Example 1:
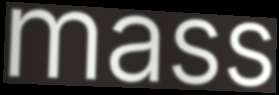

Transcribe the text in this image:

mass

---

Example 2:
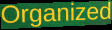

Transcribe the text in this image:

Organized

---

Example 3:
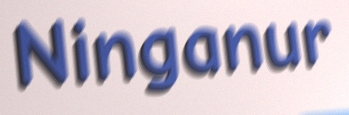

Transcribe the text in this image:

Ninganur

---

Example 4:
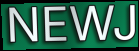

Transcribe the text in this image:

NEWJ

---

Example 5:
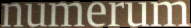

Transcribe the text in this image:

numerum